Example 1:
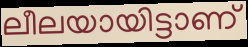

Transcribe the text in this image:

ലീലയായിട്ടാണ്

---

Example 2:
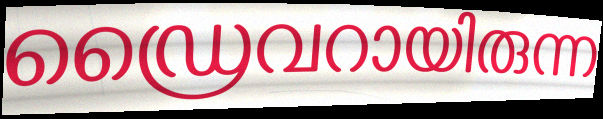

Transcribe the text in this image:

ഡ്രൈവറായിരുന്ന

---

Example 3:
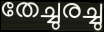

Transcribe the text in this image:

തേച്ചുരച്ചു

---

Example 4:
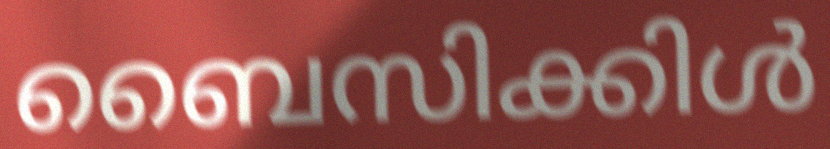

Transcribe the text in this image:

ബൈസിക്കിൾ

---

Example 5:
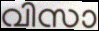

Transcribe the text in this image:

വിസാ